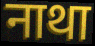
नाथा